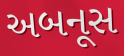
અબનૂસ